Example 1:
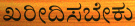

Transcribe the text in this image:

ಖರೀದಿಸಬೇಕು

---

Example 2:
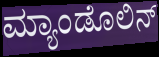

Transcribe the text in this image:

ಮ್ಯಾಂಡೊಲಿನ್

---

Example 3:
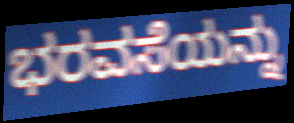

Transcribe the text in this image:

ಭರವಸೆಯನ್ನು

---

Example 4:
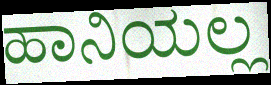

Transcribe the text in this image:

ಹಾನಿಯಲ್ಲ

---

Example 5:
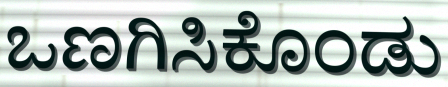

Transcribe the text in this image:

ಒಣಗಿಸಿಕೊಂಡು